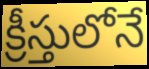
క్రీస్తులోనే